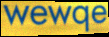
wewqe